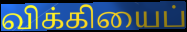
விக்கியைப்